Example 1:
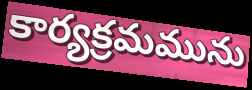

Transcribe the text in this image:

కార్యక్రమమును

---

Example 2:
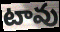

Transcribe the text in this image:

టావు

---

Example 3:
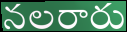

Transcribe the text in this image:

నలరారు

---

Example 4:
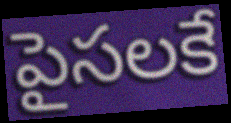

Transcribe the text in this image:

పైసలకే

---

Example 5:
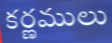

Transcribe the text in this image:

కర్ణములు